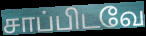
சாப்பிடவே